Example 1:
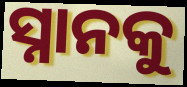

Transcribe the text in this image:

ସ୍ନାନକୁ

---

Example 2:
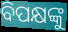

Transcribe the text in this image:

ବିପକ୍ଷଙ୍କୁ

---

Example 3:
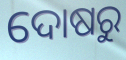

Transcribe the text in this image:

ଦୋଷରୁ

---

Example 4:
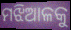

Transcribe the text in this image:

ମଝିଆଳକୁ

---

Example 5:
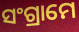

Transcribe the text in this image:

ସଂଗ୍ରାମେ